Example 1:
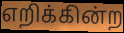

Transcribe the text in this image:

எறிக்கின்ற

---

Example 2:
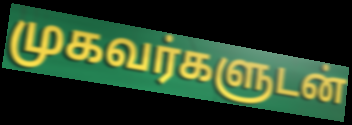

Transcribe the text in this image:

முகவர்களுடன்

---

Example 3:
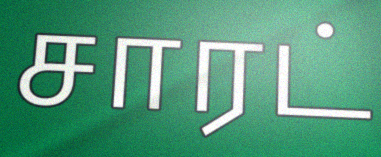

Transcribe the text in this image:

சாரட்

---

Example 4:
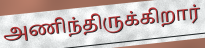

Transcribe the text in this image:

அணிந்திருக்கிறார்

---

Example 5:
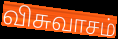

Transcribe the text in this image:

விசுவாசம்